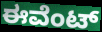
ಈವೆಂಟ್